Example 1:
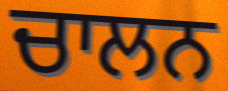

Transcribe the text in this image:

ਚਾਲਨ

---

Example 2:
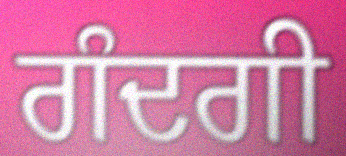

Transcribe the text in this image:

ਗੰਦਗੀ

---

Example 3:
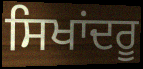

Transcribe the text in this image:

ਸਿਖਾਂਦਰੂ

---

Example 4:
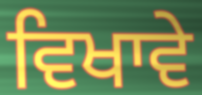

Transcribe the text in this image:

ਵਿਖਾਵੇ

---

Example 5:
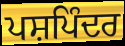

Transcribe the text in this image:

ਪਸ਼ਪਿੰਦਰ